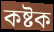
কষ্টক